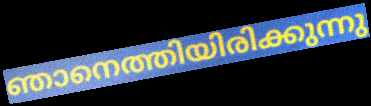
ഞാനെത്തിയിരിക്കുന്നു